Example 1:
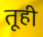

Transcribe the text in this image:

तूही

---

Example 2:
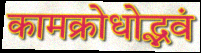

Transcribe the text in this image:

कामक्रोधोद्भवं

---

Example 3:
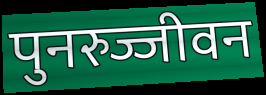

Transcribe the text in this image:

पुनरुज्जीवन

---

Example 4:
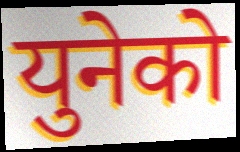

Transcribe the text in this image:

युनेको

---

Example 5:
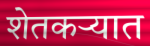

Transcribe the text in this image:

शेतकऱ्यात